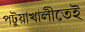
পটুয়াখালীতেই